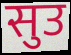
सुउ